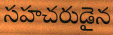
సహచరుడైన